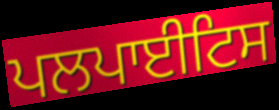
ਪਲਪਾਈਟਿਸ